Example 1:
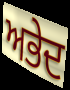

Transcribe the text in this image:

ਅਭੇਦ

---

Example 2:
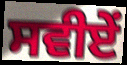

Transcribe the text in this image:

ਸਵੀਏਂ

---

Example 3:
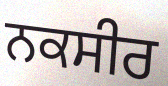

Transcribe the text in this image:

ਨਕਸੀਰ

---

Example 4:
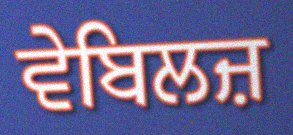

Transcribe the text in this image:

ਵੇਬਿਲਜ਼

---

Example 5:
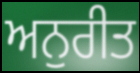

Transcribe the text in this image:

ਅਨੁਰੀਤ